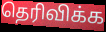
தெரிவிக்க